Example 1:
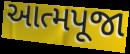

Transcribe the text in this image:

આત્મપૂજા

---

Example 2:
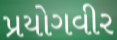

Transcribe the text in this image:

પ્રયોગવીર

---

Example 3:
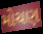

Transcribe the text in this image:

મોચણ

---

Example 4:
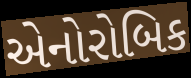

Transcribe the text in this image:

એનોરોબિક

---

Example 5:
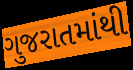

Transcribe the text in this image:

ગુજરાતમાંથી